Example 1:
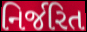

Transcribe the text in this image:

નિર્જરિત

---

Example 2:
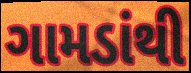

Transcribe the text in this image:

ગામડાંથી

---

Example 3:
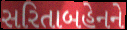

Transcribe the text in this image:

સરિતાબહેનને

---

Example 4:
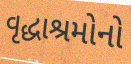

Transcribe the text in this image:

વૃદ્ધાશ્રમોનો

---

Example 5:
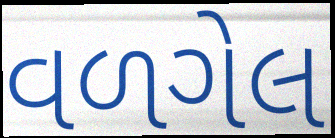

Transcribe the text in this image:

વળગેલ